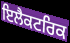
ਇਲੈਕਟਰਿਕ